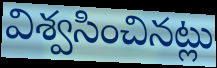
విశ్వసించినట్లు